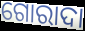
ଗୋରାଦା